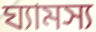
ঘ্যামস্য